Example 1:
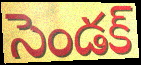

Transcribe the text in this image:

సెండక్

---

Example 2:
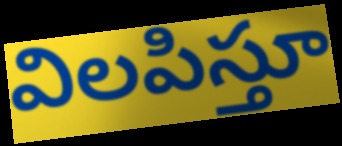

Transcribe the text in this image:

విలపిస్తూ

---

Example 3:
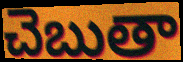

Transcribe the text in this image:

చెబుతా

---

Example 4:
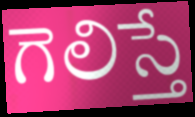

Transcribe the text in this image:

గెలిస్తే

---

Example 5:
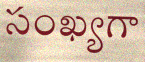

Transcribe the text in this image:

సంఖ్యగా